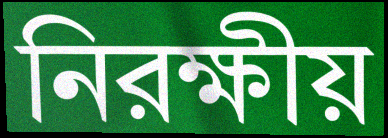
নিরক্ষীয়